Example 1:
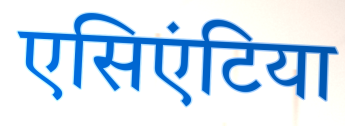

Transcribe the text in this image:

एसिएंटिया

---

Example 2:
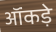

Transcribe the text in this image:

ऑंकड़े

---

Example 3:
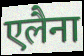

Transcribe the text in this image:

एलैना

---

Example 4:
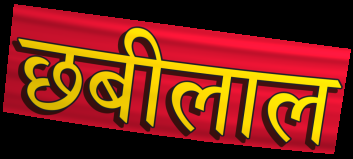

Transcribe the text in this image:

छबीलाल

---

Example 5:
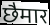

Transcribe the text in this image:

छैमार